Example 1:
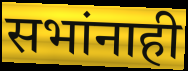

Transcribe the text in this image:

सभांनाही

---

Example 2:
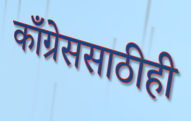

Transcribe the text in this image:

काँग्रेससाठीही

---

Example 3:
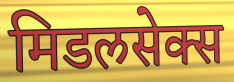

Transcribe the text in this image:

मिडलसेक्स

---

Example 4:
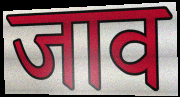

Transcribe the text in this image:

जाव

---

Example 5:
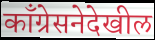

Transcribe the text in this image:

काँग्रेसनेदेखील